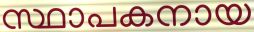
സ്ഥാപകനായ